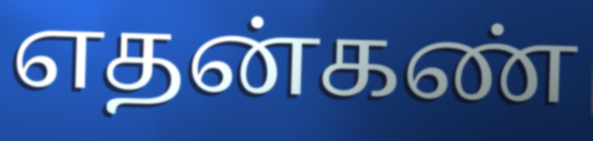
எதன்கண்